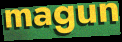
magun